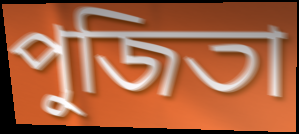
পুজিতা